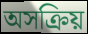
অসক্রিয়